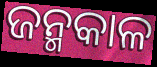
ଜନ୍ମକାଳ